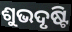
ଶୁଭଦୃଷ୍ଟି